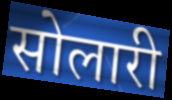
सोलारी